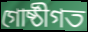
গোষ্ঠীগত